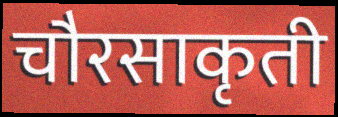
चौरसाकृती